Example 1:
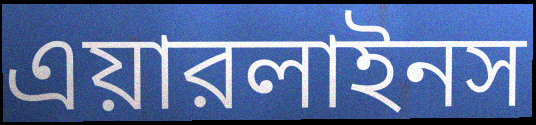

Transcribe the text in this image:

এয়ারলাইনস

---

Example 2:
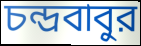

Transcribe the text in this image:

চন্দ্রবাবুর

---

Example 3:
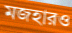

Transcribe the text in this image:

মজহারও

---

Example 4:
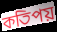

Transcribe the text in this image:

কতিপয়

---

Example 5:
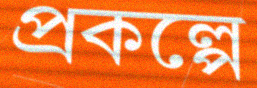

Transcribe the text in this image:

প্রকল্পে